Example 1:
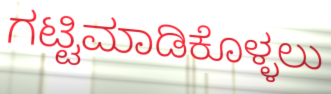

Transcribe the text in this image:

ಗಟ್ಟಿಮಾಡಿಕೊಳ್ಳಲು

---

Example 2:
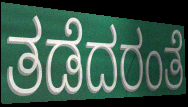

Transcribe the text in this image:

ತಡೆದರಂತೆ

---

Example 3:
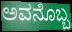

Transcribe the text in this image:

ಅವನೊಬ್ಬ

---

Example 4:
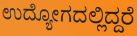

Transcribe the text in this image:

ಉದ್ಯೋಗದಲ್ಲಿದ್ದರೆ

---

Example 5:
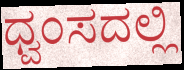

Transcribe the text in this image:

ಧ್ವಂಸದಲ್ಲಿ